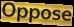
Oppose